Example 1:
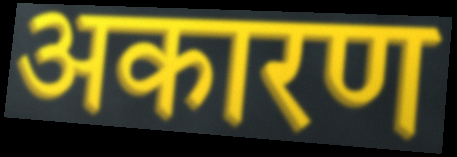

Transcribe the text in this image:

अकारण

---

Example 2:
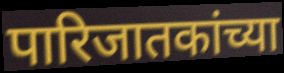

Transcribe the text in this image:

पारिजातकांच्या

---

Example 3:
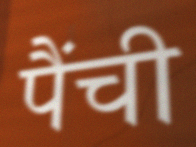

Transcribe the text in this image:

पैंची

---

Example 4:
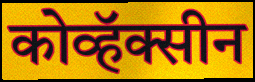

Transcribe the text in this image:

कोव्हॅक्सीन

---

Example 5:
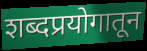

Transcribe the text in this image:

शब्दप्रयोगातून